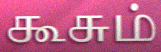
கூசும்